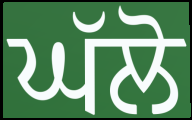
ਘੱਲੋ